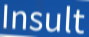
Insult